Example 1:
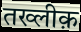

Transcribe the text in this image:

तख्लीक़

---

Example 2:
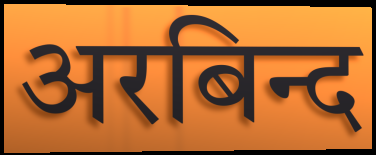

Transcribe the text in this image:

अरबिन्द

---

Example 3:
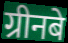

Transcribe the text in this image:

ग्रीनबे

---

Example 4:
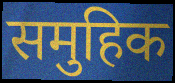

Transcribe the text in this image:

समुहिक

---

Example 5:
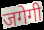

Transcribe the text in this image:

जगेगी